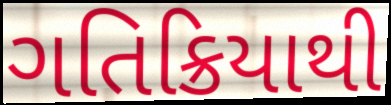
ગતિક્રિયાથી